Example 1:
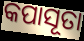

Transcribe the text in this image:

କପାସୂତା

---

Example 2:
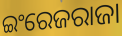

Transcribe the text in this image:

ଇଂରେଜରାଜା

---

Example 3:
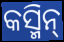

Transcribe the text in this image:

କସ୍ମିନ୍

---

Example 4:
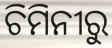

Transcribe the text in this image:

ଚିମିନୀରୁ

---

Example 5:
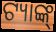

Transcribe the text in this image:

ଟ୍ୟାଙ୍କ୍